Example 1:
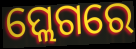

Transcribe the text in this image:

ପ୍ଲେଗରେ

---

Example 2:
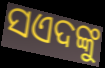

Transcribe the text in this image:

ସଏଦଙ୍କୁ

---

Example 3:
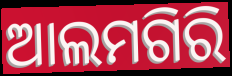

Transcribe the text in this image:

ଆଲମଗିରି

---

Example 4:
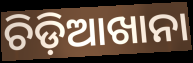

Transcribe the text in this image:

ଚିଡ଼ିଆଖାନା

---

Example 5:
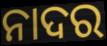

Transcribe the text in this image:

ନାଦର